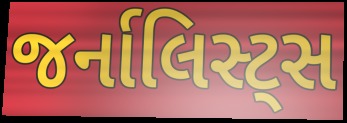
જર્નાલિસ્ટ્સ